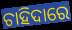
ଚାହିଦାରେ